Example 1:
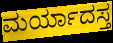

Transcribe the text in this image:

ಮರ್ಯಾದಸ್ತ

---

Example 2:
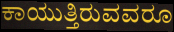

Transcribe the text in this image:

ಕಾಯುತ್ತಿರುವವರೂ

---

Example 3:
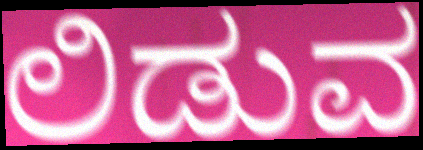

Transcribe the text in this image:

ಲಿಡುವ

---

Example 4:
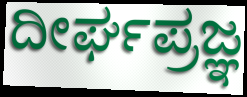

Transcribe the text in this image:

ದೀರ್ಘಪ್ರಜ್ಞ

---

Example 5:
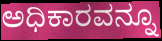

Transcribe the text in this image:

ಅಧಿಕಾರವನ್ನೂ